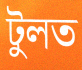
টুলত